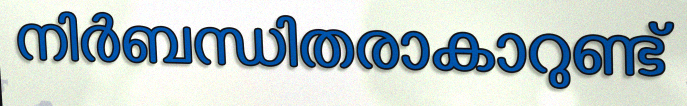
നിർബന്ധിതരാകാറുണ്ട്